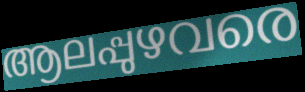
ആലപ്പുഴവരെ